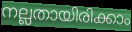
നല്ലതായിരിക്കാം